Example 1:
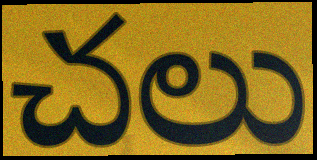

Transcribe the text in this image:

చలు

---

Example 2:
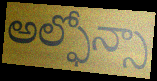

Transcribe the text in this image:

అల్ఫోన్సా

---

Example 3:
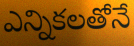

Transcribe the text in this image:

ఎన్నికలతోనే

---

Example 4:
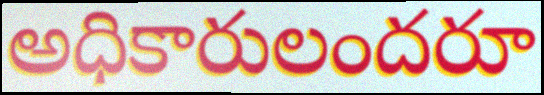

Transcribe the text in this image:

అధికారులందరూ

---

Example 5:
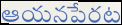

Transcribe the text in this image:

ఆయనపేరట